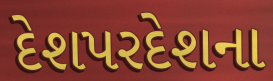
દેશપરદેશના